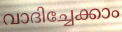
വാദിച്ചേക്കാം